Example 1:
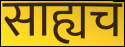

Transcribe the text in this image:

साह्यच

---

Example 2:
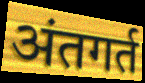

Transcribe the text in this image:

अंतगर्त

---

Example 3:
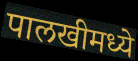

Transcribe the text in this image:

पालखीमध्ये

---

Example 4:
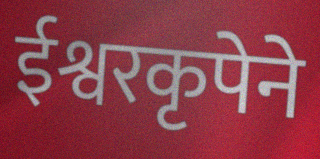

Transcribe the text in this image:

ईश्वरकृपेने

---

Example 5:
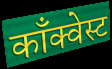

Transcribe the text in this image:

काँक्वेस्ट